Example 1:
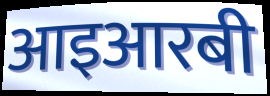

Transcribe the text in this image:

आइआरबी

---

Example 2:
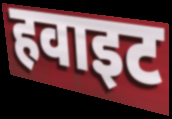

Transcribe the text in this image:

हवाइट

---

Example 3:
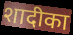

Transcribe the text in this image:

शादीका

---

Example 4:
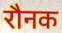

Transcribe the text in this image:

रौनक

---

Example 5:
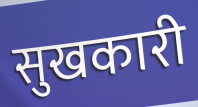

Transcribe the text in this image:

सुखकारी